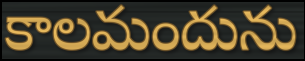
కాలమందును